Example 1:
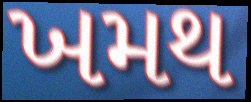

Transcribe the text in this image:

ખમથ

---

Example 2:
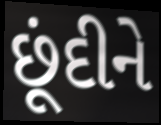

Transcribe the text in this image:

છૂંદીને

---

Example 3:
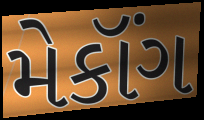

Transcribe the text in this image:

મેકૉંગ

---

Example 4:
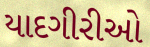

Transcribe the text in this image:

યાદગીરીઓ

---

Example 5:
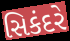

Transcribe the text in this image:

સિકંદરે